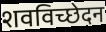
शवविच्छेदन